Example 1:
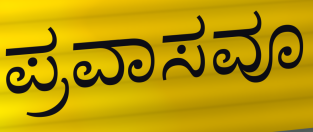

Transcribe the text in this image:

ಪ್ರವಾಸವೂ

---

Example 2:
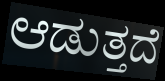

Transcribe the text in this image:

ಆಡುತ್ತದೆ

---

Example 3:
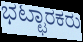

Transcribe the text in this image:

ಭಟ್ಟಾರಕರು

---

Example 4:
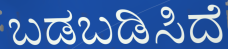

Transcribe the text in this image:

ಬಡಬಡಿಸಿದೆ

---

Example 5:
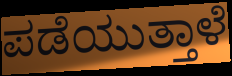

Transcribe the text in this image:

ಪಡೆಯುತ್ತಾಳೆ